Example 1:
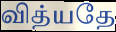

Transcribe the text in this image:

வித்யதே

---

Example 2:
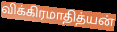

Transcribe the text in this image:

விக்கிரமாதித்யன்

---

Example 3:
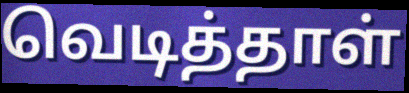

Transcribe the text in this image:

வெடித்தாள்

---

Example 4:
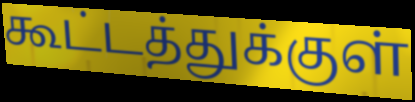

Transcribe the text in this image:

கூட்டத்துக்குள்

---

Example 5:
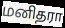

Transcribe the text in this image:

மனிதரா